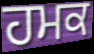
ਹਮਕ